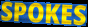
SPOKES